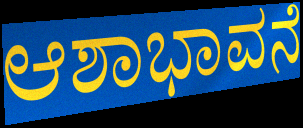
ಆಶಾಭಾವನೆ